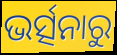
ଭର୍ତ୍ସନାରୁ